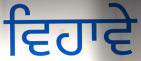
ਵਿਹਾਵੇ